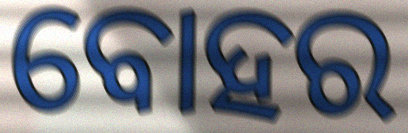
ବୋହର